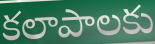
కలాపాలకు